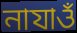
নাযাওঁ